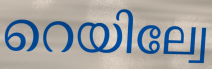
റെയില്വേ